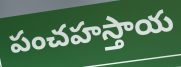
పంచహస్తాయ